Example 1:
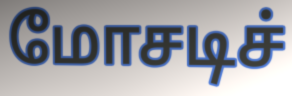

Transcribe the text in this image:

மோசடிச்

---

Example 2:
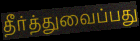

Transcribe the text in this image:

தீர்த்துவைப்பது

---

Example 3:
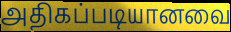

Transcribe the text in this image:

அதிகப்படியானவை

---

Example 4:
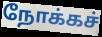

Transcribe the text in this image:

நோக்கச்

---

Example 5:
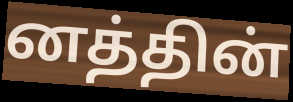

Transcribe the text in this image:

னத்தின்